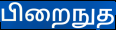
பிறைநுத